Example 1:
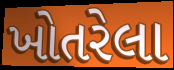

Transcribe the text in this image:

ખોતરેલા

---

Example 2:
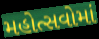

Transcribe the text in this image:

મહોત્સવોમાં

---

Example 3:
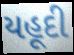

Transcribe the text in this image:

યહૂદી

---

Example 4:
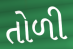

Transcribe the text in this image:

તોળી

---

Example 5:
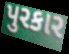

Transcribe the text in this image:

પુરકાર